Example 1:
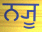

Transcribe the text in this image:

ਨ੍ਯੂ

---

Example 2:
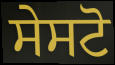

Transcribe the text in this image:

ਸੇਸਟੋ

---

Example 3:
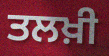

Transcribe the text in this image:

ਤਲਖ਼ੀ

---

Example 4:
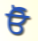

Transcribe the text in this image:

ਓੋ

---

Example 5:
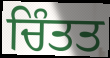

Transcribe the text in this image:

ਚਿੰਤਤ